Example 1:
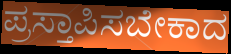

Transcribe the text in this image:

ಪ್ರಸ್ತಾಪಿಸಬೇಕಾದ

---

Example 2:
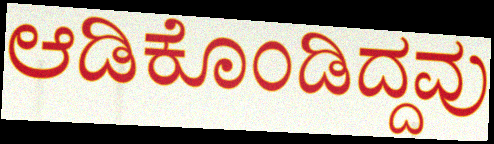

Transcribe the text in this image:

ಆಡಿಕೊಂಡಿದ್ದವು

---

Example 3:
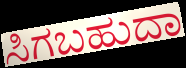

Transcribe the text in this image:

ಸಿಗಬಹುದಾ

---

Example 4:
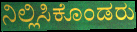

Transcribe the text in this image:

ನಿಲ್ಲಿಸಿಕೊಂಡರು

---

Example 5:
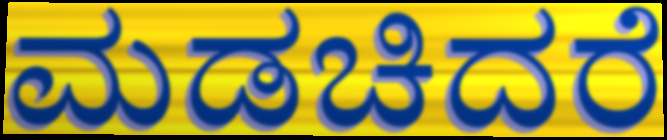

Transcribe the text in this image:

ಮಡಚಿದರೆ